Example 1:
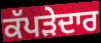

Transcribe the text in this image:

ਕੱਪੜੇਦਾਰ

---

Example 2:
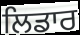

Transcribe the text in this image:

ਲਿਡਾਰ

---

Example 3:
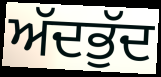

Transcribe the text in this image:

ਅੱਦਭੁੱਦ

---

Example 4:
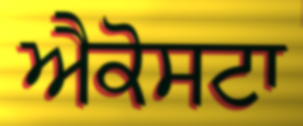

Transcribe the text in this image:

ਐਕੋਸਟਾ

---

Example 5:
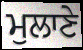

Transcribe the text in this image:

ਮੁਲਾਣੇ